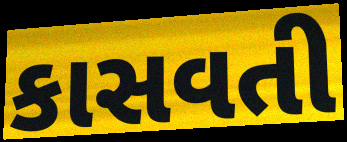
કાસવતી